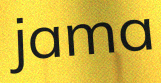
jama